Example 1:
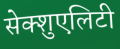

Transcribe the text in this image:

सेक्शुएलिटी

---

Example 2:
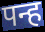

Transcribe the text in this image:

पन्ह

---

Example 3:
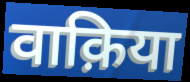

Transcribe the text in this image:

वाक़िया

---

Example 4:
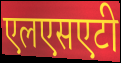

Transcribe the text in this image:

एलएसएटी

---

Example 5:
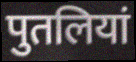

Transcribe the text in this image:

पुतलियां